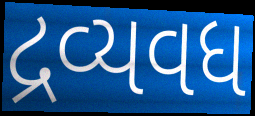
દ્રવ્યવધ